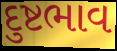
દુષ્ટભાવ